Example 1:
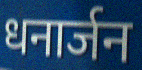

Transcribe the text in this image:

धनार्जन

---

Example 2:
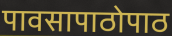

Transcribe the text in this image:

पावसापाठोपाठ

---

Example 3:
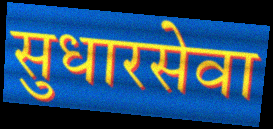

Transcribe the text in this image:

सुधारसेवा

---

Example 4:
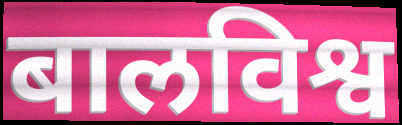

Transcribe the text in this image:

बालविश्व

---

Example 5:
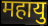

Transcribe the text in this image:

महायु